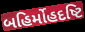
બહિર્મોહદષ્ટિ